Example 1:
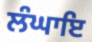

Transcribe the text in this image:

ਲੰਘਾਇ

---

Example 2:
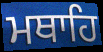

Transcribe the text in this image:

ਮਥਾਹਿ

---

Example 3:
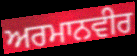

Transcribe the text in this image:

ਅਰਮਾਨਵੀਰ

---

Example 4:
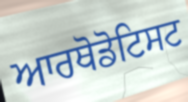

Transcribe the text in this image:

ਆਰਥੋਡੋਟਿਸਟ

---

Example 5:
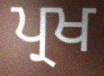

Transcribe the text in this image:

ਪ੍ਰਖ